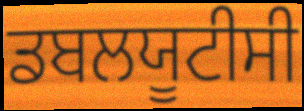
ਡਬਲਯੂਟੀਸੀ